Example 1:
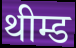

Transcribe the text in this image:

थीम्ड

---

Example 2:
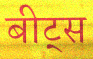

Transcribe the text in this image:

बीट्स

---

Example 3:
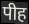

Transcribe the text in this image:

पीह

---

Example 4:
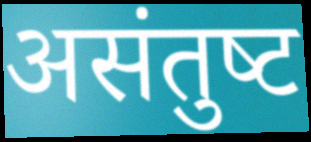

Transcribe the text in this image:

असंतुष्‍ट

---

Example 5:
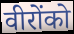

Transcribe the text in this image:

वीरोंको